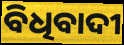
ବିଧିବାଦୀ